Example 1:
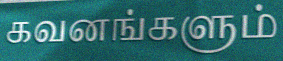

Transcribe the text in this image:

கவனங்களும்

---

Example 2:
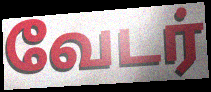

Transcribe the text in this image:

வேடர்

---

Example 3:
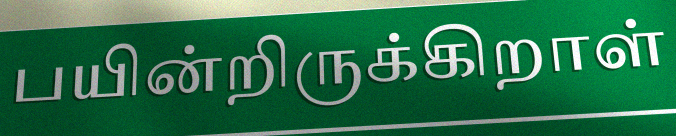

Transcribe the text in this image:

பயின்றிருக்கிறாள்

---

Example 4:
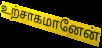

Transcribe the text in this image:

உற்சாகமானேன்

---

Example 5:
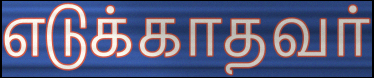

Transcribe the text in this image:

எடுக்காதவர்